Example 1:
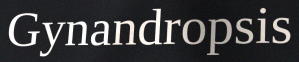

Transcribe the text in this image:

Gynandropsis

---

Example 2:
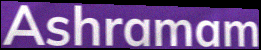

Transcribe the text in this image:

Ashramam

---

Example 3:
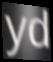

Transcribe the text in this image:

yd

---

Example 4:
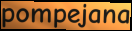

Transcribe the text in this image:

pompejana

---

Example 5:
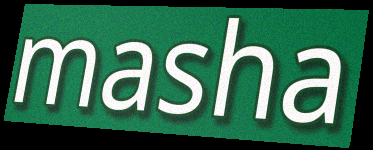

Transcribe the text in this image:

masha